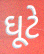
ઘૂટે